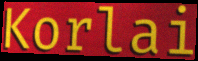
Korlai